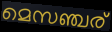
മെസഞ്ചര്